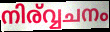
നിര്വ്വചനം